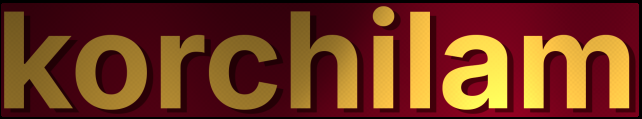
korchilam